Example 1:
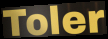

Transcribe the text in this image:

Toler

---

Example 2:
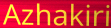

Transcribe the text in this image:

Azhakiri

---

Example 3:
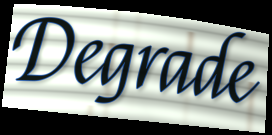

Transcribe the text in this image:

Degrade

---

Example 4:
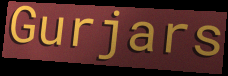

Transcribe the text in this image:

Gurjars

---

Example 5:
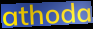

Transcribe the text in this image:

athoda